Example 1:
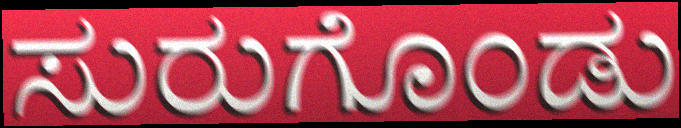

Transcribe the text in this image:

ಸುರುಗೊಂಡು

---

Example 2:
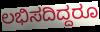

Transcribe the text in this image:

ಲಭಿಸದಿದ್ದರೂ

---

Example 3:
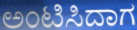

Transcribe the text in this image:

ಅಂಟಿಸಿದಾಗ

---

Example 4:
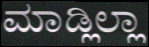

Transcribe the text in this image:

ಮಾಡ್ಲಿಲ್ಲಾ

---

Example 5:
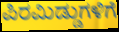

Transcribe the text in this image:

ಪಿರಮಿಡ್ಡುಗಳಿಗೆ